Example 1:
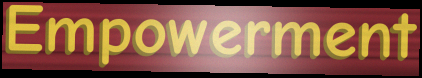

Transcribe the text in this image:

Empowerment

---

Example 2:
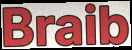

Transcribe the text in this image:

Braib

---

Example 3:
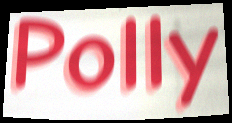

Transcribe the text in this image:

Polly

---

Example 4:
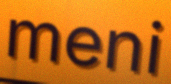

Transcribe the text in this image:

meni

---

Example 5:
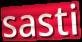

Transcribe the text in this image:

sasti